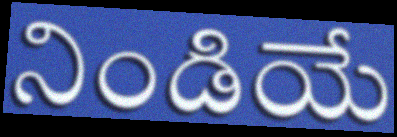
నిండియే